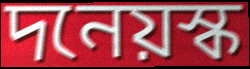
দনেয়স্ক